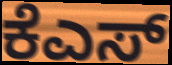
ಕೆಎಸ್